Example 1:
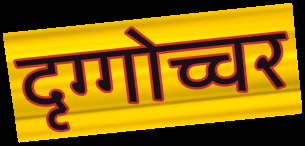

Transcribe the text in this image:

दृग्गोच्चर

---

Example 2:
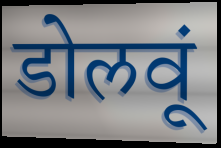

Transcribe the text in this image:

डोलवूं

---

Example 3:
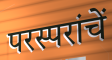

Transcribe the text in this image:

परस्परांचें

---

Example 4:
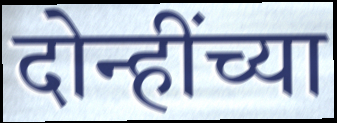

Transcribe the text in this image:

दोन्हींच्या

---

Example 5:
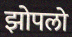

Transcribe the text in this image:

झोपलो